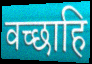
वच्छाहि